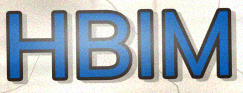
HBIM